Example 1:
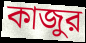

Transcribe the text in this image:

কাজুর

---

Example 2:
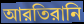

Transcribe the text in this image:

আরতিরানি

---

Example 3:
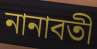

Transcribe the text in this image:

নানাবতী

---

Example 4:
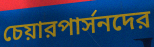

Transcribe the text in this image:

চেয়ারপার্সনদের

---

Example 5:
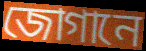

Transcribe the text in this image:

জোগানে